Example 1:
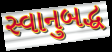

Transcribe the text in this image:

સ્વાનુબદ્ધ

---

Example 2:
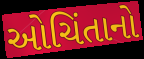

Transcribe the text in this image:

ઓચિંતાનો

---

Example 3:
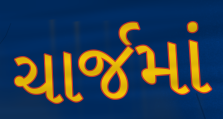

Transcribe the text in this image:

ચાર્જમાં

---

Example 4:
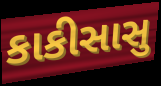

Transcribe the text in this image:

કાકીસાસુ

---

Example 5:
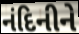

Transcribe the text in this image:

નંદિનીને